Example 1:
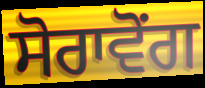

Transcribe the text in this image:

ਸੋਰਾਵੋਂਗ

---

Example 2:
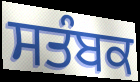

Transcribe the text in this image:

ਸਤੰਬਕ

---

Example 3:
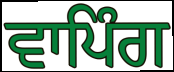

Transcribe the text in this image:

ਵਾਪਿੰਗ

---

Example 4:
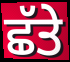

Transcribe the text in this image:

ਛੱਤੇ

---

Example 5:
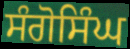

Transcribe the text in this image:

ਸੰਗੋਸਿੰਘ